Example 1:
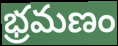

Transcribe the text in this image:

భ్రమణం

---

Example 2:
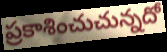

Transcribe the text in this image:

ప్రకాశించుచున్నదో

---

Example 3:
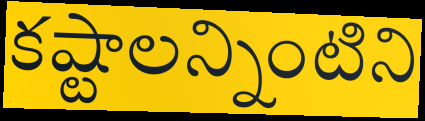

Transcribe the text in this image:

కష్టాలన్నింటిని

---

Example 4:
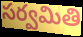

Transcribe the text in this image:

సర్వమితి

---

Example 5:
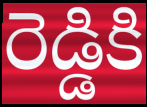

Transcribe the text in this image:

రెడ్డికి